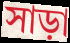
সাড়া